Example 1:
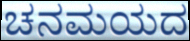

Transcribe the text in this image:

ಚನಮಯದ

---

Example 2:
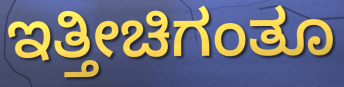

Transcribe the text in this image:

ಇತ್ತೀಚಿಗಂತೂ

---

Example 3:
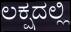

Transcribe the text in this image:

ಲಕ್ಷದಲ್ಲಿ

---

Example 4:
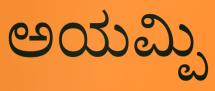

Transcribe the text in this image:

ಅಯಮ್ಪಿ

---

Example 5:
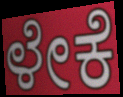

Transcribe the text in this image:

ಳೇಕೆ